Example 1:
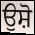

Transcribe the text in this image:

ਉਸ਼ੋ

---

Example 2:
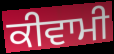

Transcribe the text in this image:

ਕੀਵਾਮੀ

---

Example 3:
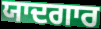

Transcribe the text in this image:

ਯਾਦਗਾਰ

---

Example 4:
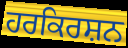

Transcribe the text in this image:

ਹਰਕਿਰਸ਼ਨ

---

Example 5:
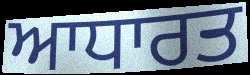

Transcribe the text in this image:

ਆਧਾਰਤ